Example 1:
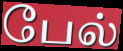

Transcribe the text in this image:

பேல்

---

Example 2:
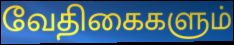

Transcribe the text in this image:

வேதிகைகளும்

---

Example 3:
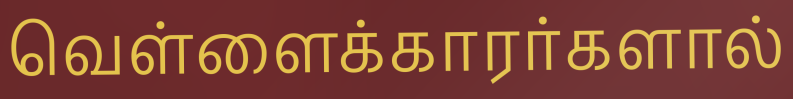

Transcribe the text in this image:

வெள்ளைக்காரர்களால்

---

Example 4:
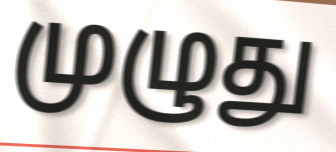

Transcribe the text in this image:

முழுது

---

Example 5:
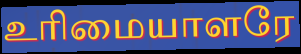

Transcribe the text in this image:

உரிமையாளரே